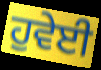
ਹੁਵੇਈ